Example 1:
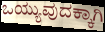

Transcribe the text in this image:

ಒಯ್ಯುವುದಕ್ಕಾಗಿ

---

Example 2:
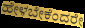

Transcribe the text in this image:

ಹೇಳಬೇಕೆಂದರೇ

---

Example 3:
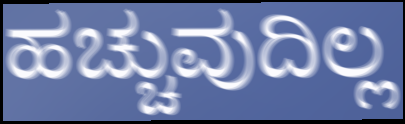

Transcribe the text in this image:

ಹಚ್ಚುವುದಿಲ್ಲ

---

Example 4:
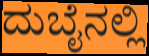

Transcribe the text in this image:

ದುಬೈನಲ್ಲಿ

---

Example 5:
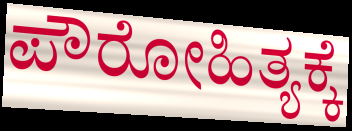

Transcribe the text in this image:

ಪೌರೋಹಿತ್ಯಕ್ಕೆ